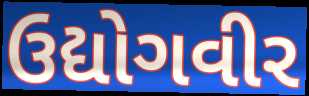
ઉદ્યોગવીર